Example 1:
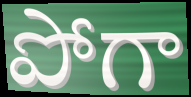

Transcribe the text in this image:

పోగా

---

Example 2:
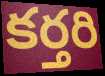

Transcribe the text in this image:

కర్తరి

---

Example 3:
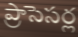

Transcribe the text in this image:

ప్రాసెసర్ల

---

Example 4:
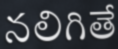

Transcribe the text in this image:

నలిగితే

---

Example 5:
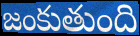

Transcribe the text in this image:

జంకుతుంది